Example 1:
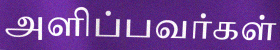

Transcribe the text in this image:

அளிப்பவர்கள்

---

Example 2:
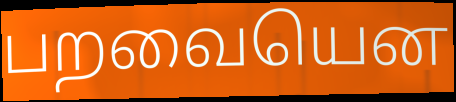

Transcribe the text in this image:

பறவையென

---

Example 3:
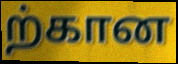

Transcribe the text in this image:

ற்கான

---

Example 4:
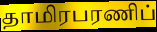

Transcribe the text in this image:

தாமிரபரணிப்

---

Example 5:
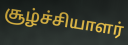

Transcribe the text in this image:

சூழ்ச்சியாளர்